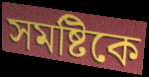
সমষ্টিকে